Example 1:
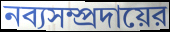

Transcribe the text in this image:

নব্যসম্প্রদায়ের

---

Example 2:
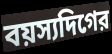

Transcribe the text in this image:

বয়স্যদিগের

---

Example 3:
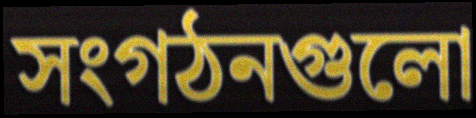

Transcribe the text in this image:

সংগঠনগুলো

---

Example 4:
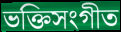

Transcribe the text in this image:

ভক্তিসংগীত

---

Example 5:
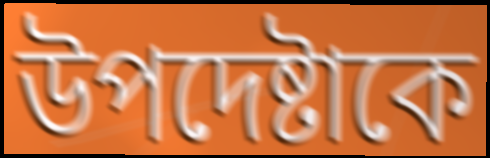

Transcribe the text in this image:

উপদেষ্টাকে